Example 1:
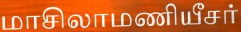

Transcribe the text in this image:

மாசிலாமணியீசர்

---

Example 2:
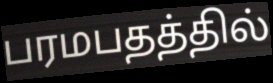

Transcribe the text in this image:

பரமபதத்தில்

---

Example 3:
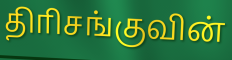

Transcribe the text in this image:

திரிசங்குவின்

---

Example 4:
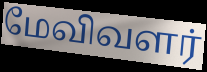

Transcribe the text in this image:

மேவிவளர்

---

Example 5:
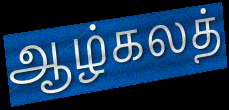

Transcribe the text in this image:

ஆழ்கலத்